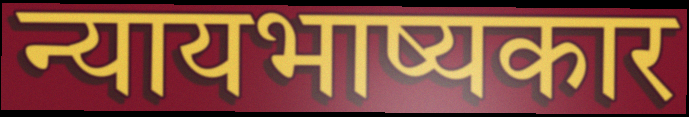
न्यायभाष्यकार